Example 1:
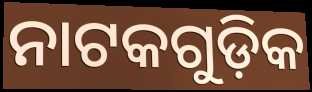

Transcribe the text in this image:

ନାଟକଗୁଡ଼ିକ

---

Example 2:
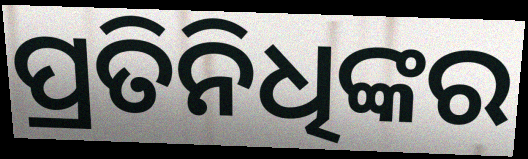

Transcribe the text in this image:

ପ୍ରତିନିଧିଙ୍କର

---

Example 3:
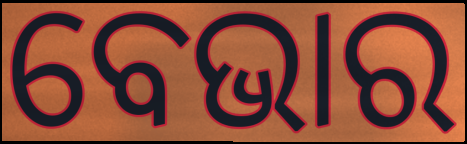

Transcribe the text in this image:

ବେଭାର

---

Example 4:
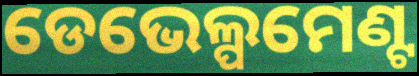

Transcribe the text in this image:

ଡେଭେଲ୍ପମେଣ୍ଟ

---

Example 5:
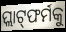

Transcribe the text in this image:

ପ୍ଲାଟ୍‌ଫର୍ମକୁ